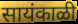
सायंकाळी